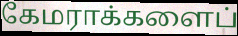
கேமராக்களைப்